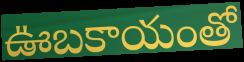
ఊబకాయంతో